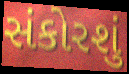
સંકોરશું